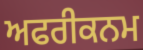
ਅਫਰੀਕਨਮ